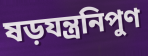
ষড়যন্ত্রনিপুণ